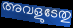
അവളുടേതു